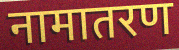
नामातरण